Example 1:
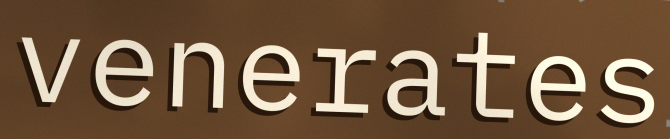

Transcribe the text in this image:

venerates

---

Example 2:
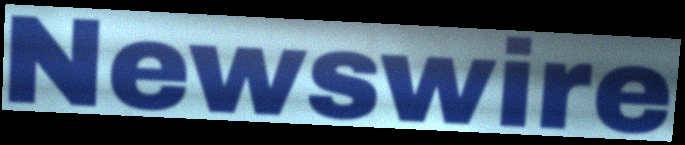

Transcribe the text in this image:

Newswire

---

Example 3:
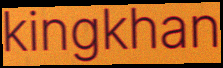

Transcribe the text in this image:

kingkhan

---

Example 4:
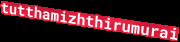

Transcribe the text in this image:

tutthamizhthirumurai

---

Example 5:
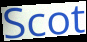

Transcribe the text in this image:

Scot